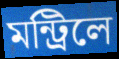
মন্ট্রিলে